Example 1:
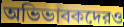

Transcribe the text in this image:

অভিভাবকদেরও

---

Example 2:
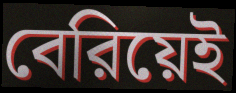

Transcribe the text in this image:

বেরিয়েই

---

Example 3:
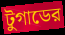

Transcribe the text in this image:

টুগাডের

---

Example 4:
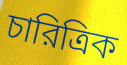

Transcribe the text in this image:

চারিত্রিক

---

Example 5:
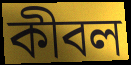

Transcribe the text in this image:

কীবল